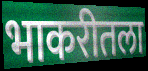
भाकरीतला